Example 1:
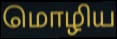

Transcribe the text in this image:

மொழிய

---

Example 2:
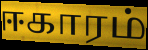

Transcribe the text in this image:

ஈகாரம்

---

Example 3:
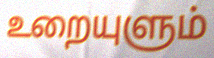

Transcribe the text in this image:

உறையுளும்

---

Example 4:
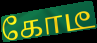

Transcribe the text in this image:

கோடீ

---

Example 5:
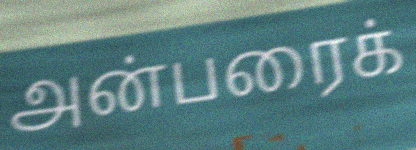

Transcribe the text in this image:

அன்பரைக்